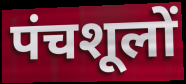
पंचशूलों